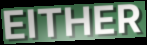
EITHER